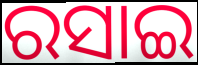
ରସାଇ